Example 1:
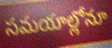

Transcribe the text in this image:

సమయాల్లోనూ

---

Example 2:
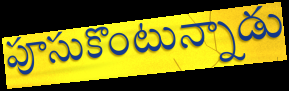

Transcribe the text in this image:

పూసుకొంటున్నాడు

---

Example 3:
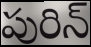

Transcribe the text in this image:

పురిన్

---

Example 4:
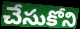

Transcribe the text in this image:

చేసుకోని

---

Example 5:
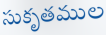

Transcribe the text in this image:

సుకృతముల